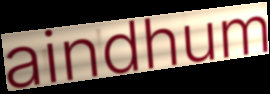
aindhum